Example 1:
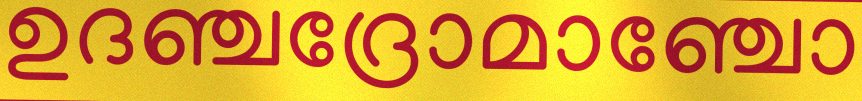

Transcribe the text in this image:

ഉദഞ്ചദ്രോമാഞ്ചോ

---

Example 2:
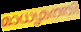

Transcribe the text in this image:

മാധ്യമത്തി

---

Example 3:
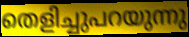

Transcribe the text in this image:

തെളിച്ചുപറയുന്നു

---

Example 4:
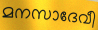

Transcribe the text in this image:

മനസാദേവീ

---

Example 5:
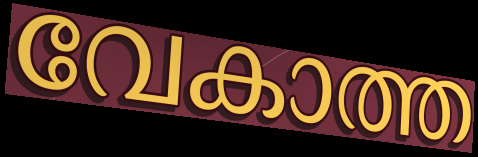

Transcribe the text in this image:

വേകാത്ത